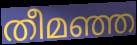
തീമഞ്ഞ